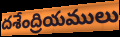
దశేంద్రియములు